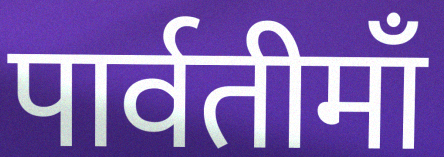
पार्वतीमाँ